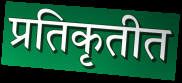
प्रतिकृतीत